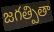
జగత్పితా